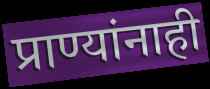
प्राण्यांनाही